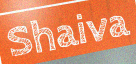
Shaiva